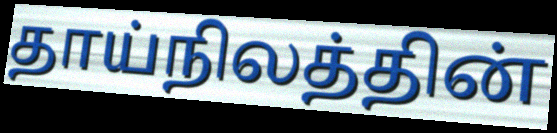
தாய்நிலத்தின்